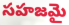
సహజమై